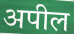
अपील